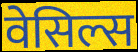
वेसिल्स